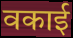
वकाई